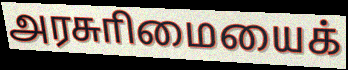
அரசுரிமையைக்